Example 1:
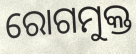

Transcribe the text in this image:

ରୋଗମୁକ୍ତ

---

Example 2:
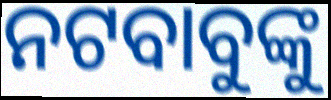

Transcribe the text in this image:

ନଟବାବୁଙ୍କୁ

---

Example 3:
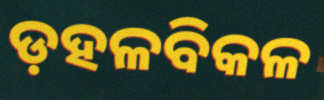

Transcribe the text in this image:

ଡ଼ହଳବିକଳ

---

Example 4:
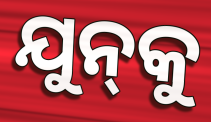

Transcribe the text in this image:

ଯୁନ୍‍କୁ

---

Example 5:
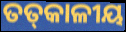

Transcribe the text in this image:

ତତ୍‌କାଳୀୟ